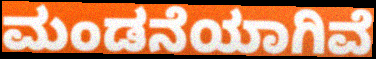
ಮಂಡನೆಯಾಗಿವೆ